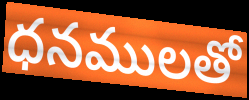
ధనములతో